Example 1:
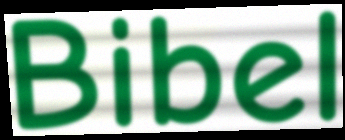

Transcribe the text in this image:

Bibel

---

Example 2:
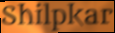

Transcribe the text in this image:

Shilpkar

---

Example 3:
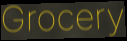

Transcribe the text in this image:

Grocery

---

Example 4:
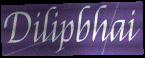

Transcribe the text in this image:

Dilipbhai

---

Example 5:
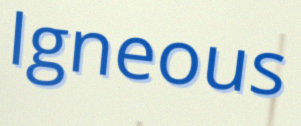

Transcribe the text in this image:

Igneous